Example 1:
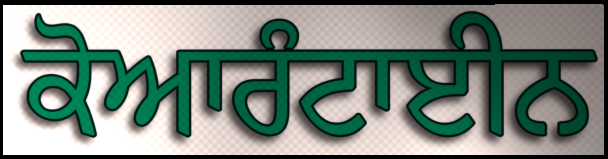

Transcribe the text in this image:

ਕੋਆਰੰਟਾਈਨ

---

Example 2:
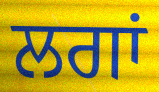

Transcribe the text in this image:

ਲਗਾਂ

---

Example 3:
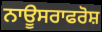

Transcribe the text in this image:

ਨਾਊਸਰਾਫਰੋਸ਼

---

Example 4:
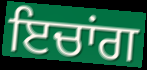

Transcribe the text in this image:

ਇਚਾਂਗ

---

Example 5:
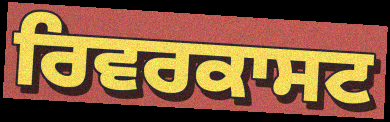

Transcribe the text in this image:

ਰਿਵਰਕਾਸਟ